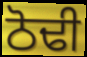
ਠੋਢੀ